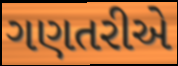
ગણતરીએ